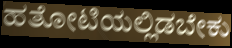
ಹತೋಟಿಯಲ್ಲಿಡಬೇಕು